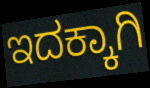
ಇದಕ್ಕಾಗಿ